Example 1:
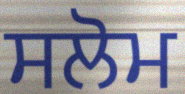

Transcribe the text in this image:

ਸਲੋਮ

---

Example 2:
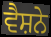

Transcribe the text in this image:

ਵੈਸ਼ਨੇ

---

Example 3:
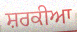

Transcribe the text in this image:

ਸ਼ਰਕੀਆ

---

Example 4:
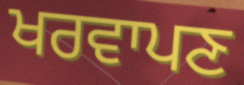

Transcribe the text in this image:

ਖਰਵਾਪਣ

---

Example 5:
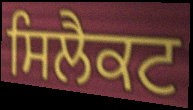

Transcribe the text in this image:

ਸਿਲੈਕਟ